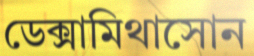
ডেক্সামিথাসোন